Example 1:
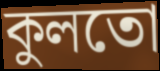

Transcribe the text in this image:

কুলতো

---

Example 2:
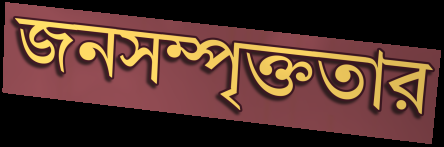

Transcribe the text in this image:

জনসম্পৃক্ততার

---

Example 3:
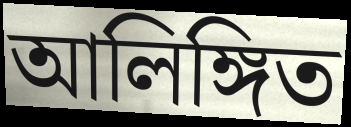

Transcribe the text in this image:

আলিঙ্গিত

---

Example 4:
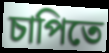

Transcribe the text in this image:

চাপিতে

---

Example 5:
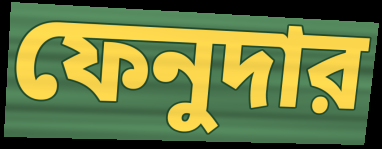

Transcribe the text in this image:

ফেনুদার